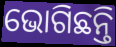
ଭୋଗିଛନ୍ତି